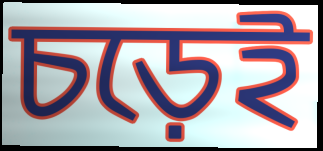
চড়েই